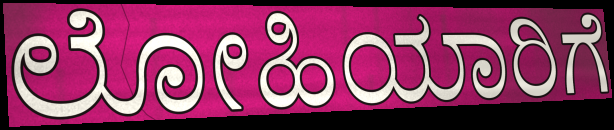
ಲೋಹಿಯಾರಿಗೆ